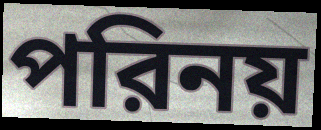
পরিনয়